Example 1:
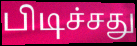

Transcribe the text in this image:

பிடிச்சது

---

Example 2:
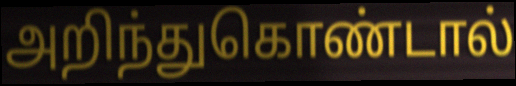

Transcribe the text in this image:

அறிந்துகொண்டால்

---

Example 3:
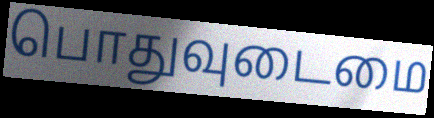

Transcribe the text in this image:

பொதுவுடைமை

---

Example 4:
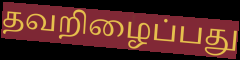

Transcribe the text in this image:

தவறிழைப்பது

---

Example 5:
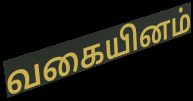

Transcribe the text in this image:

வகையினம்